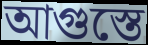
আগুস্তে